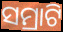
ସମ୍ରାଟି